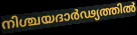
നിശ്ചയദാർഢ്യത്തിൽ